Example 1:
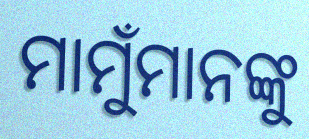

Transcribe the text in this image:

ମାମୁଁମାନଙ୍କୁ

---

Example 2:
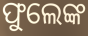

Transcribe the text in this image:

ଫୁଲେଙ୍କ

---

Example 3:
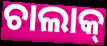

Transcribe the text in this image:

ଚାଲାକ୍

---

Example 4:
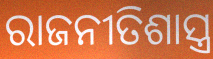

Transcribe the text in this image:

ରାଜନୀତିଶାସ୍ତ୍ର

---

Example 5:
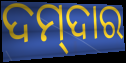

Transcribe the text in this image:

ଦମ୍‌ଦାର